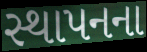
સ્થાપનના